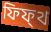
ফিফ্থ